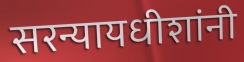
सरन्यायधीशांनी